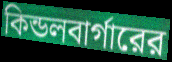
কিন্ডলবার্গারের